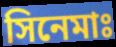
সিনেমাঃ